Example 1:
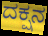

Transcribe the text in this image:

ದಕ್ಷನ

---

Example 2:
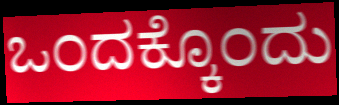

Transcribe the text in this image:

ಒಂದಕ್ಕೊಂದು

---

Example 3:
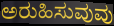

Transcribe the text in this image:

ಅರುಹಿಸುವುವು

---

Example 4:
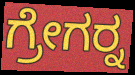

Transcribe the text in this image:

ಗ್ರೇಗರ್‍ನ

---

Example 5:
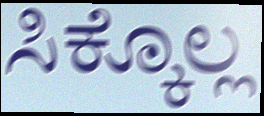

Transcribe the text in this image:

ಸಿಕ್ಕೊಲ್ಲ